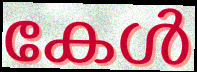
കേൾ